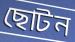
ছোটন